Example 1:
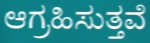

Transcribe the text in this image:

ಆಗ್ರಹಿಸುತ್ತವೆ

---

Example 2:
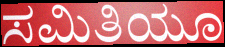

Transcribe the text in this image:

ಸಮಿತಿಯೂ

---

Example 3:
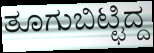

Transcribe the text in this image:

ತೂಗುಬಿಟ್ಟಿದ್ದ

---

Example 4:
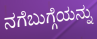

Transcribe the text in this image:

ನಗೆಬುಗ್ಗೆಯನ್ನು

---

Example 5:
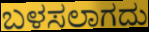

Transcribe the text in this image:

ಬಳಸಲಾಗದು